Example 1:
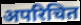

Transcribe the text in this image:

अपरिचित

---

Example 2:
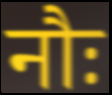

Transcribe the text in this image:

नौः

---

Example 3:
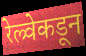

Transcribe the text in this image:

रेल्वेकडून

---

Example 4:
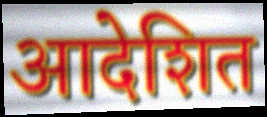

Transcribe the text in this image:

आदेशित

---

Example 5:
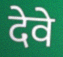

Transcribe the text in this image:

देवे